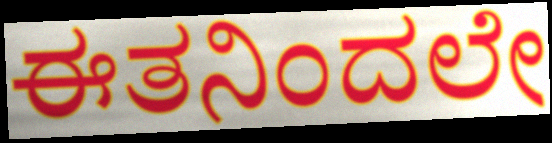
ಈತನಿಂದಲೇ